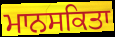
ਮਾਨਸਕਿਤਾ